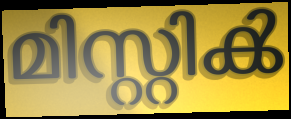
മിസ്റ്റിൿ